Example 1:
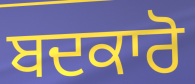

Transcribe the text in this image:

ਬਦਕਾਰੋ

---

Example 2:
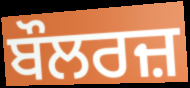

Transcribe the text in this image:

ਬੌਲਰਜ਼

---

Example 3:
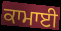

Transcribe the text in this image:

ਕਾਮਾਈ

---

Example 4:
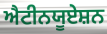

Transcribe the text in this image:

ਐਟੀਨਯੂਏਸ਼ਨ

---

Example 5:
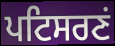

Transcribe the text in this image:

ਪਟਿਸਰਣਂ